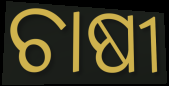
ଚାଷୀ